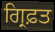
ਗ੍ਰਿਫ਼ਤ